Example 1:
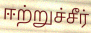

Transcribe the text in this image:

ஈற்றுச்சீர்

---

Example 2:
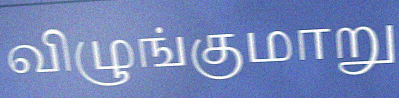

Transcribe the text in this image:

விழுங்குமாறு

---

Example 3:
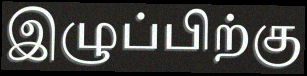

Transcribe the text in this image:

இழுப்பிற்கு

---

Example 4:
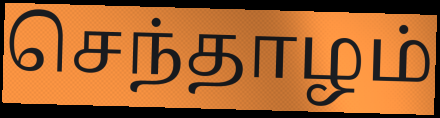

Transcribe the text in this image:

செந்தாழம்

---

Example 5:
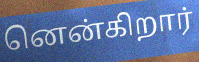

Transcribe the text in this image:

னென்கிறார்